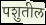
पशुतील